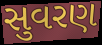
સુવરણ